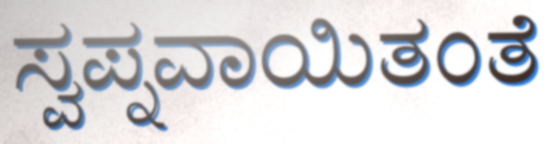
ಸ್ವಪ್ನವಾಯಿತಂತೆ